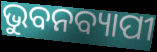
ଭୁବନବ୍ୟାପୀ